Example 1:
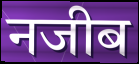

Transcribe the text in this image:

नजीब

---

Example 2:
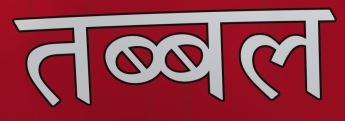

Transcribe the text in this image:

तब्बल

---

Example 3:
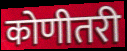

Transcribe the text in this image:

कोणीतरी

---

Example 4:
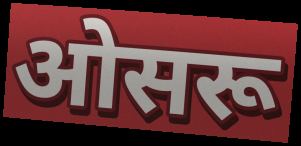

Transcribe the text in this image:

ओसरू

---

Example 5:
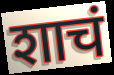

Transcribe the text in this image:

शाचं